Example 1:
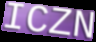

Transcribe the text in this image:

ICZN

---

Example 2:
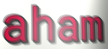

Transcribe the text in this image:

aham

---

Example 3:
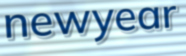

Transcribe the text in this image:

newyear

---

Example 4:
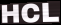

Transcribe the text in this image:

HCL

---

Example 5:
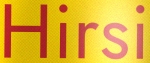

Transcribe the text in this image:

Hirsi